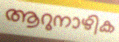
ആറുനാഴിക